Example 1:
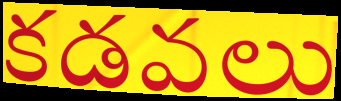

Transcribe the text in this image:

కడవలు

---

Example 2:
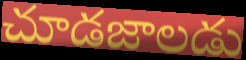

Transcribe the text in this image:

చూడజాలడు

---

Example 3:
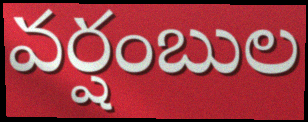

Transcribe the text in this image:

వర్షంబుల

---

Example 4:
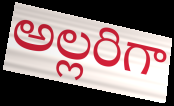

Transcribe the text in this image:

అల్లరిగా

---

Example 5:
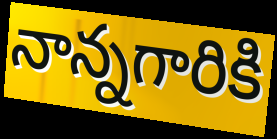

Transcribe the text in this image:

నాన్నగారికి